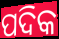
ପଦିକ